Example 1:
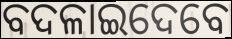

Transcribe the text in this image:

ବଦଳାଇଦେବେ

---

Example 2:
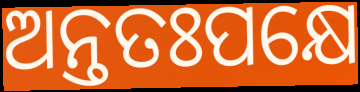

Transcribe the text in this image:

ଅନ୍ତତଃପକ୍ଷେ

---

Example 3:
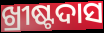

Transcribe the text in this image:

ଖ୍ରୀଷ୍ଟଦାସ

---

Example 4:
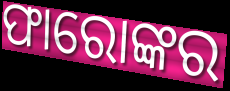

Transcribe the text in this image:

ଫାରୋଙ୍କର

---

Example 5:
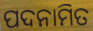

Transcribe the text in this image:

ପଦନାମିତ